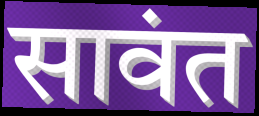
सावंत